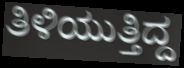
ತಿಳಿಯುತ್ತಿದ್ದ